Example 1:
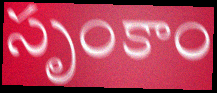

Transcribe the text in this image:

సృంకాం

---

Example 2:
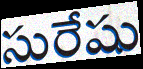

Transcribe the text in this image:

సురేషు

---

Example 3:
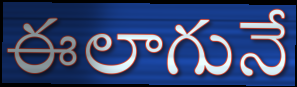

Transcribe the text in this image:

ఈలాగునే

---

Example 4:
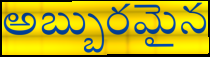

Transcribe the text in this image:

అబ్బురమైన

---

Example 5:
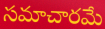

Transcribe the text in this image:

సమాచారమే